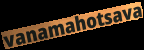
vanamahotsava